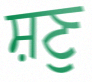
ਸ਼ਣੁ